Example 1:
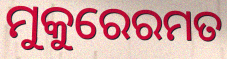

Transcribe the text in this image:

ମୁକୁରେରମତ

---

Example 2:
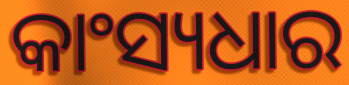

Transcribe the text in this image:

କାଂସ୍ୟଧାର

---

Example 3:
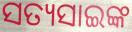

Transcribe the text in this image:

ସତ୍ୟସାଇଙ୍କ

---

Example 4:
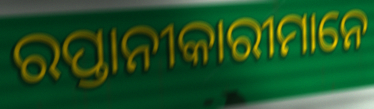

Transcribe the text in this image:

ରପ୍ତାନୀକାରୀମାନେ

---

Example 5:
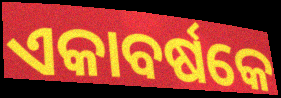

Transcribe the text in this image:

ଏକାବର୍ଷକେ